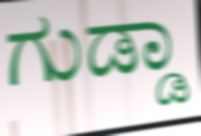
ಗುಡ್ಡಾ